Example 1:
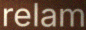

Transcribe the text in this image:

relam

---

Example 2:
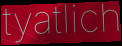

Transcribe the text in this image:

tyatlich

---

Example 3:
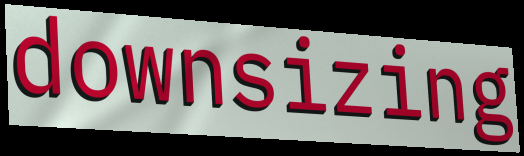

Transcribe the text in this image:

downsizing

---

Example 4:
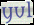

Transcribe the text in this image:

yul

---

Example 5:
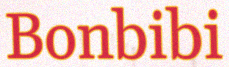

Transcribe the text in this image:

Bonbibi